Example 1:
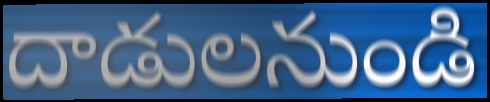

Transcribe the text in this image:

దాడులనుండి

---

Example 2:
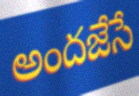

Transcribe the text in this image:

అందజేసే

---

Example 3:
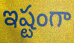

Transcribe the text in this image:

ఇష్టంగా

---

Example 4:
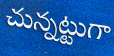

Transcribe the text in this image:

చున్నట్టుగా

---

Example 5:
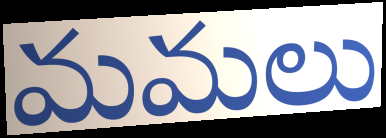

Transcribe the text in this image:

మమలు